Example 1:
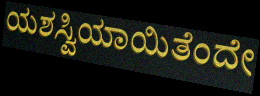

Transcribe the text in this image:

ಯಶಸ್ವಿಯಾಯಿತೆಂದೇ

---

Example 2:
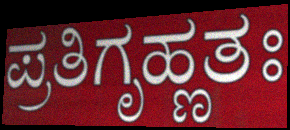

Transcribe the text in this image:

ಪ್ರತಿಗೃಹ್ಣತಃ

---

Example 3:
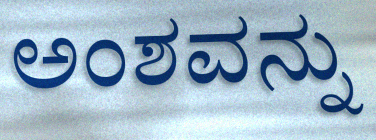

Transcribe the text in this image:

ಅಂಶವನ್ನು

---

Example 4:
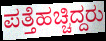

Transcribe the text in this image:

ಪತ್ತೆಹಚ್ಚಿದ್ದರು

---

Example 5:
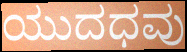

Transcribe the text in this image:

ಯುದಧವು